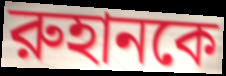
রুহানকে